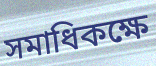
সমাধিকক্ষে